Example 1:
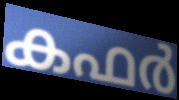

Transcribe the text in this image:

കഫർ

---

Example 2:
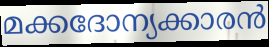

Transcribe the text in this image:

മക്കദോന്യക്കാരൻ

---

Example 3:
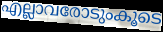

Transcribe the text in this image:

എല്ലാവരോടുംകൂടെ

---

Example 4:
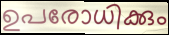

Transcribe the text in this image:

ഉപരോധിക്കും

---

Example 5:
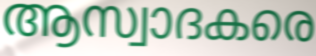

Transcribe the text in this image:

ആസ്വാദകരെ